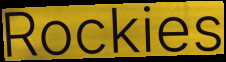
Rockies